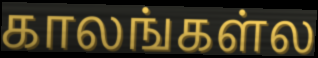
காலங்கள்ல